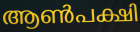
ആൺപക്ഷി